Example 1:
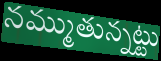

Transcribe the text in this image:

నమ్ముతున్నట్టు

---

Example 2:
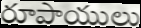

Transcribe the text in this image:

రూపాయులు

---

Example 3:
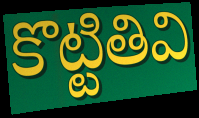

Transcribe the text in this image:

కొట్టితివి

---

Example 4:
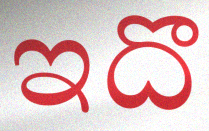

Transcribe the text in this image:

ఇదొ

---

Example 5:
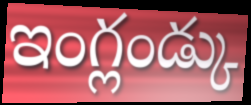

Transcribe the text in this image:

ఇంగ్లండ్కు